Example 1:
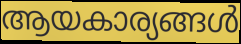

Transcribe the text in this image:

ആയകാര്യങ്ങൾ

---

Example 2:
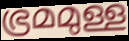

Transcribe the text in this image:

ഭ്രമമുള്ള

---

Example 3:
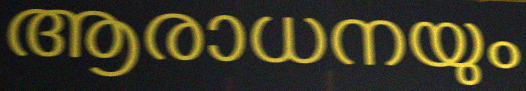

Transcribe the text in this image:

ആരാധനയും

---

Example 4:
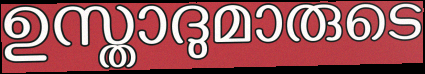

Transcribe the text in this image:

ഉസ്താദുമാരുടെ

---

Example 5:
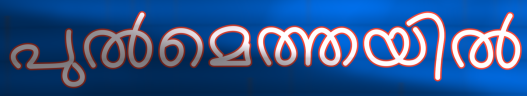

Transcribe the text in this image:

പുൽമെത്തയിൽ